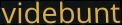
videbunt